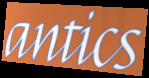
antics